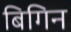
बिगिन